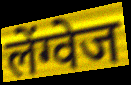
लेंग्वेज